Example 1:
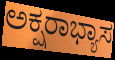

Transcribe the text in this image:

ಅಕ್ಷರಾಭ್ಯಾಸ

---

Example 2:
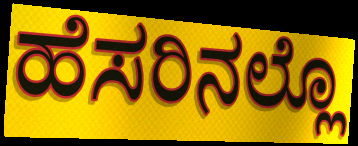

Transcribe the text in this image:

ಹೆಸರಿನಲ್ಲೊ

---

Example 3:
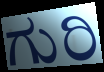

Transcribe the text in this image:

ಗುರಿ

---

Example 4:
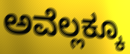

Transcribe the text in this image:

ಅವೆಲ್ಲಕ್ಕೂ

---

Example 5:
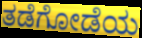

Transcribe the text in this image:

ತಡೆಗೋಡೆಯ